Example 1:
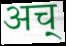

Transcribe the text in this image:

अच्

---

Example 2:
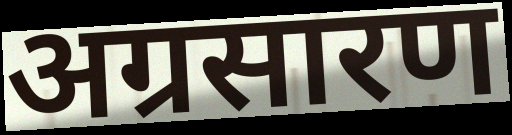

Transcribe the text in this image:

अग्रसारण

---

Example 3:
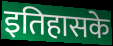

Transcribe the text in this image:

इतिहासके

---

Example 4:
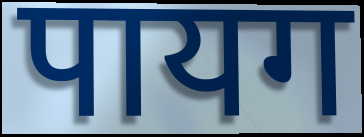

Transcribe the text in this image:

पायग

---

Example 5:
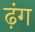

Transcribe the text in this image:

ढ़ंग